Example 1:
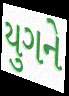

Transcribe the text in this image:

યુગને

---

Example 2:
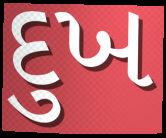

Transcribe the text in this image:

દુખ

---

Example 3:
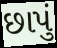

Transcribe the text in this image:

છાપું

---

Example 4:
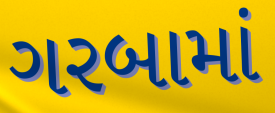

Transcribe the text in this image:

ગરબામાં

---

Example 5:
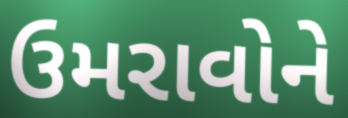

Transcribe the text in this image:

ઉમરાવોને